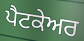
ਪੈਟਕੇਅਰ